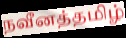
நவீனத்தமிழ்